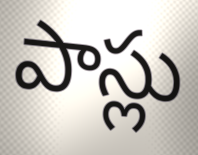
పాస్లు